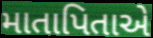
માતાપિતાએ